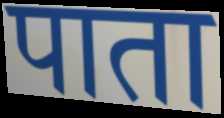
पाता